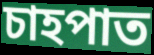
চাহপাত